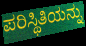
ಪರಿಸ್ಥಿತಿಯನ್ನು